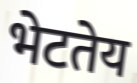
भेटतेय